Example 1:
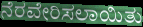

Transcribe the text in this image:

ನೆರವೇರಿಸಲಾಯಿತು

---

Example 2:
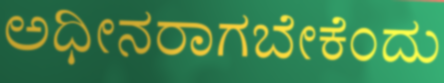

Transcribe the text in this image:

ಅಧೀನರಾಗಬೇಕೆಂದು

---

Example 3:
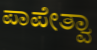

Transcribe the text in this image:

ಪಾಪೇತ್ವಾ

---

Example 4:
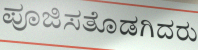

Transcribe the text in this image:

ಪೂಜಿಸತೊಡಗಿದರು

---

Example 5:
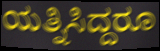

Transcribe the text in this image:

ಯತ್ನಿಸಿದ್ದರೂ